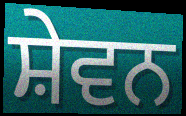
ਸ਼ੇਵਨ